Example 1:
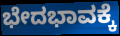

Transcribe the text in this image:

ಭೇದಭಾವಕ್ಕೆ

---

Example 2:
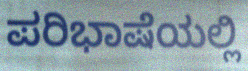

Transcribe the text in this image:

ಪರಿಭಾಷೆಯಲ್ಲಿ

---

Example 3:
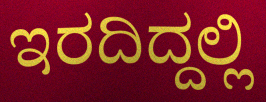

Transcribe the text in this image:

ಇರದಿದ್ದಲ್ಲಿ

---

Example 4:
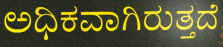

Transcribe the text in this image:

ಅಧಿಕವಾಗಿರುತ್ತದೆ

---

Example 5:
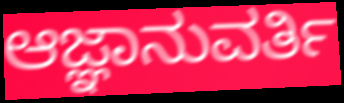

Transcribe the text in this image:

ಆಜ್ಞಾನುವರ್ತಿ